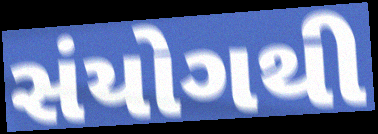
સંયોગથી